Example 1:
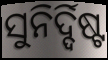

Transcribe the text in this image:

ସୁନିର୍ଦ୍ଦିଷ୍ଟ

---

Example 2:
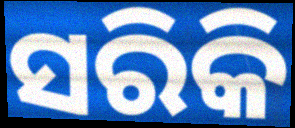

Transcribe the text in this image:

ସରିକି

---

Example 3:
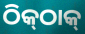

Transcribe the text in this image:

ଠିକ୍‌ଠାକ୍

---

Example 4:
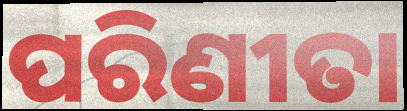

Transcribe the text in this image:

ପରିଣୀତା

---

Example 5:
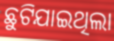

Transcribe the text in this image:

ଛୁଟିଯାଇଥିଲା